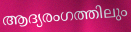
ആദ്യരംഗത്തിലും